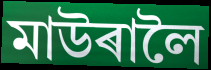
মাউৰালৈ